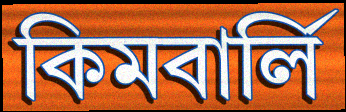
কিমবার্লি